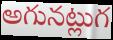
అగునట్లుగ